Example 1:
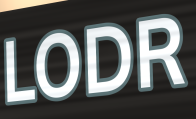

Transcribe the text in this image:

LODR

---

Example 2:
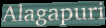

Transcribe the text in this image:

Alagapuri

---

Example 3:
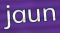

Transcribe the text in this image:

jaun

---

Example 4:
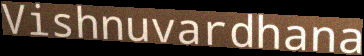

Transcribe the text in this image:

Vishnuvardhana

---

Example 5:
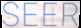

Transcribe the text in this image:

SEER